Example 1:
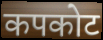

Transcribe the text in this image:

कपकोट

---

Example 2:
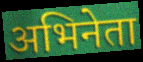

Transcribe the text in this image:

अभिनेता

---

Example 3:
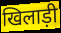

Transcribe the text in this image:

खिलाड़ी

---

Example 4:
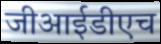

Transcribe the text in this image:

जीआईडीएच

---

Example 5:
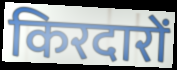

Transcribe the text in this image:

किरदारों